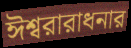
ঈশ্বরারাধনার